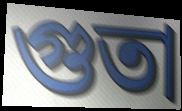
গুতা